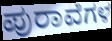
ಪುರಾವೆಗಳ